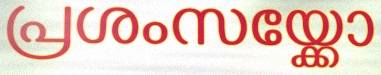
പ്രശംസയ്ക്കോ